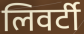
लिवर्टी